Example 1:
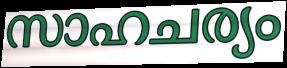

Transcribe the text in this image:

സാഹചര്യം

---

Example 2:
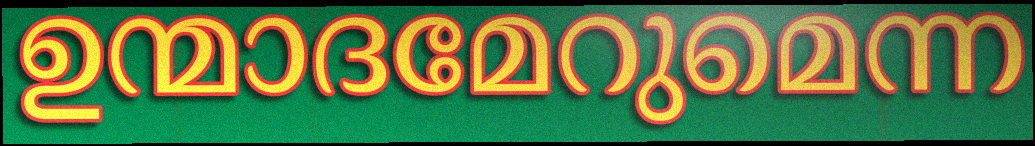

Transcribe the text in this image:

ഉന്മാദമേറുമെന്ന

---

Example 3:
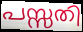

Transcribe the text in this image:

പസ്സതി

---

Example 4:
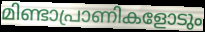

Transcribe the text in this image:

മിണ്ടാപ്രാണികളോടും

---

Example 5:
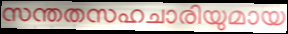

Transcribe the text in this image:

സന്തതസഹചാരിയുമായ